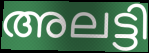
അലട്ടി